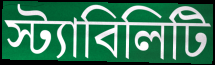
স্ট্যাবিলিটি